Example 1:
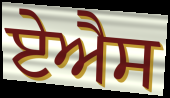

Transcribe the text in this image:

ਏਐਸ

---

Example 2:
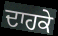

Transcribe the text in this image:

ਦਾਹਕੇ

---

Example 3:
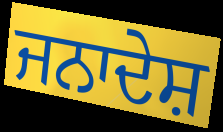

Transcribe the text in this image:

ਜਨਾਦੇਸ਼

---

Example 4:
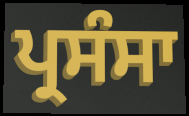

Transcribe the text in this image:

ਪ੍ਰਸੰਸਾ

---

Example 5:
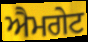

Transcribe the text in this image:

ਐਮਗੇਟ